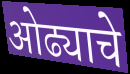
ओढ्याचे